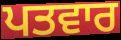
ਪਤਵਾਰ